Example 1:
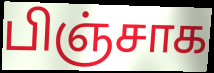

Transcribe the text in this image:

பிஞ்சாக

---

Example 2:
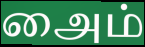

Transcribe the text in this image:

அைம்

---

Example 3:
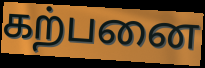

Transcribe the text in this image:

கற்பனை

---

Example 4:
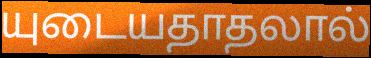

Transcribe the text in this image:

யுடையதாதலால்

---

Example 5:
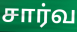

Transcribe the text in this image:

சார்வ